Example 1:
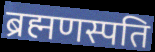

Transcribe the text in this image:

ब्रह्मणस्पति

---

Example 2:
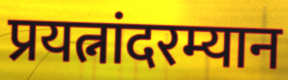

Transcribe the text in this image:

प्रयत्नांदरम्यान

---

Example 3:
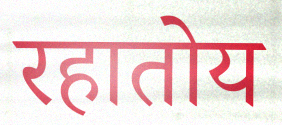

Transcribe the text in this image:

रहातोय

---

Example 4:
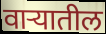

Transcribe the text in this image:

वाऱ्यातील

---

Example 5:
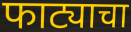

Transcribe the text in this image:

फाट्याचा